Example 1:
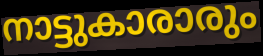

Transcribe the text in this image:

നാട്ടുകാരാരും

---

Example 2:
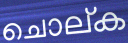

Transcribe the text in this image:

ചൊല്ക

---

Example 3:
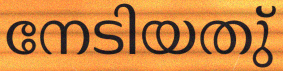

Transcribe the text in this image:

നേടിയതു്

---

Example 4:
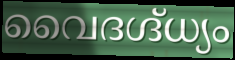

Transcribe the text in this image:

വൈദഗ്ദ്ധ്യം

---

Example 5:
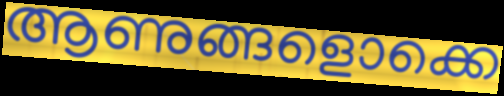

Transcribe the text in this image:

ആണുങ്ങളൊക്കെ